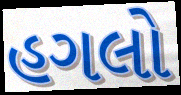
હગલો